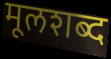
मूलशब्द